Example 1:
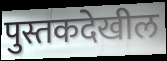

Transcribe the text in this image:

पुस्तकदेखील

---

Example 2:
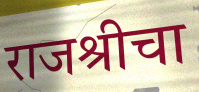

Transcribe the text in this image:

राजश्रीचा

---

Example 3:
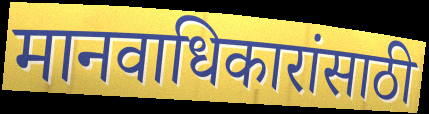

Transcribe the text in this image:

मानवाधिकारांसाठी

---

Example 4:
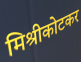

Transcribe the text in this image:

मिश्रीकोटकर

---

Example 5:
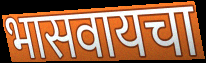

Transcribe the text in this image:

भासवायचा